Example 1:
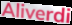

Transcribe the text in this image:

Aliverdi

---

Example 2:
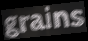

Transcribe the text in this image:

grains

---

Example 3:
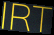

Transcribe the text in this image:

IRT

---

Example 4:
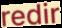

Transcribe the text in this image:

redir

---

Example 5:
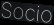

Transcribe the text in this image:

Socio